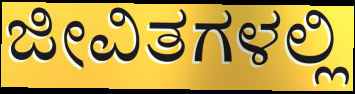
ಜೀವಿತಗಳಲ್ಲಿ